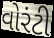
વોરંટી